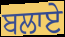
ਬਲਾਏ